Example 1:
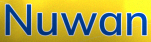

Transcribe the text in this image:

Nuwan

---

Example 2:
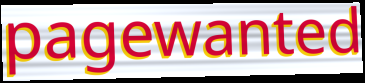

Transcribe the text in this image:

pagewanted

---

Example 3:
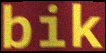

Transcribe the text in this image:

bik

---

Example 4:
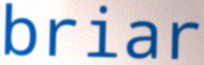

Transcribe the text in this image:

briar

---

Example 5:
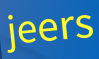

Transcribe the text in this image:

jeers